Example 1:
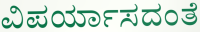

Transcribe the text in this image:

ವಿಪರ್ಯಾಸದಂತೆ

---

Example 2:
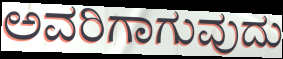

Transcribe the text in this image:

ಅವರಿಗಾಗುವುದು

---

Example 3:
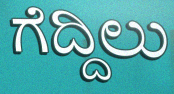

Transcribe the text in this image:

ಗೆದ್ದಿಲು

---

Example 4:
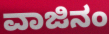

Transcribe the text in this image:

ವಾಜಿನಂ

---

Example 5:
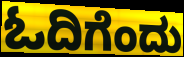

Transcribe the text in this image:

ಓದಿಗೆಂದು